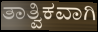
ತಾತ್ವಿಕವಾಗಿ